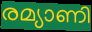
രമ്യാണി